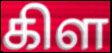
கிள